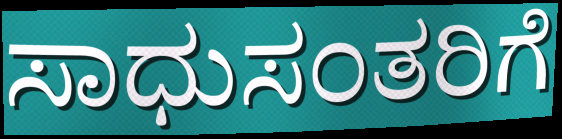
ಸಾಧುಸಂತರಿಗೆ